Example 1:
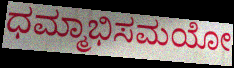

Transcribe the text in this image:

ಧಮ್ಮಾಭಿಸಮಯೋ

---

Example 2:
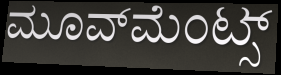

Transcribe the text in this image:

ಮೂವ್‍ಮೆಂಟ್ಸ್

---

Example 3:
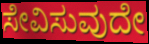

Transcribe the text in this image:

ಸೇವಿಸುವುದೇ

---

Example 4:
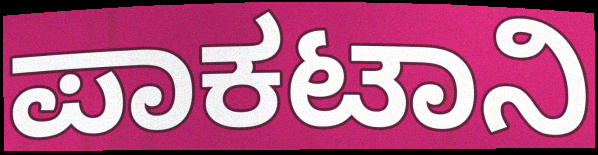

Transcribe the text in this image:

ಪಾಕಟಾನಿ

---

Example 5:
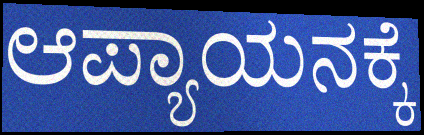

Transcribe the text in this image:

ಆಪ್ಯಾಯನಕ್ಕೆ